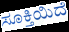
ಸೂಕ್ತಿಯಿದೆ